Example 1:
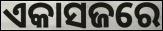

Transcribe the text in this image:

ଏକାସଜରେ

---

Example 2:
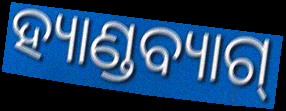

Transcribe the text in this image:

ହ୍ୟାଣ୍ଡବ୍ୟାଗ୍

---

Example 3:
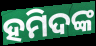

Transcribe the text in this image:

ହମିଦଙ୍କ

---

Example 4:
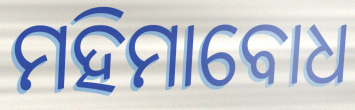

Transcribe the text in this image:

ମହିମାବୋଧ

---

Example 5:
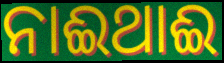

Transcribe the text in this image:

ନାଈଥାଈ